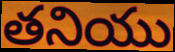
తనియు